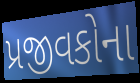
પ્રજીવકોના